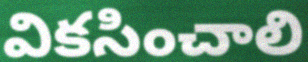
వికసించాలి